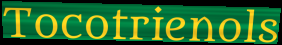
Tocotrienols